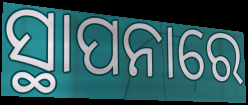
ସ୍ଥାପନାରେ